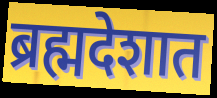
ब्रह्मदेशात